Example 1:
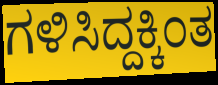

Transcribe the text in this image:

ಗಳಿಸಿದ್ದಕ್ಕಿಂತ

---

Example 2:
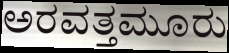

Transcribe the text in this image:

ಅರವತ್ತಮೂರು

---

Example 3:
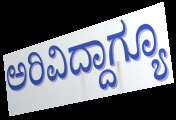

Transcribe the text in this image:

ಅರಿವಿದ್ದಾಗ್ಯೂ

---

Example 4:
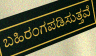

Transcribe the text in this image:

ಬಹಿರಂಗಪಡಿಸುತ್ತವೆ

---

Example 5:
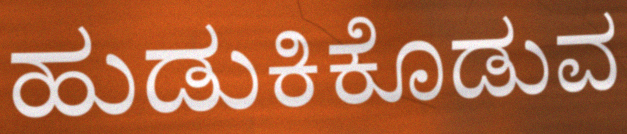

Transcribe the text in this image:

ಹುಡುಕಿಕೊಡುವ